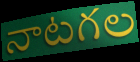
నాటగల